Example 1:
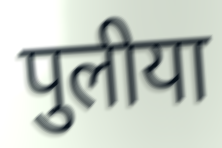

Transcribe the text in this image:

पुलीया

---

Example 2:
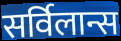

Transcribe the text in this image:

सर्विलान्स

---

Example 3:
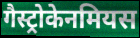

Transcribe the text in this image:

गैस्ट्रोकेनमियस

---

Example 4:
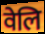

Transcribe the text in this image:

वेलि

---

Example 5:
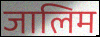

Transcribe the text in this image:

जालिम